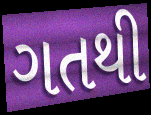
ગતથી